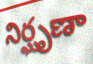
నిర్ఘృణా